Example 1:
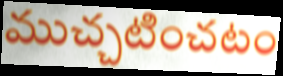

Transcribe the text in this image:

ముచ్చటించటం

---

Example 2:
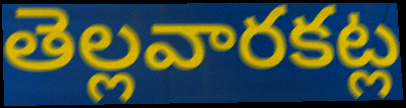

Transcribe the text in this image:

తెల్లవారకట్ల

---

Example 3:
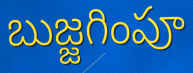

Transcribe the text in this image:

బుజ్జగింపూ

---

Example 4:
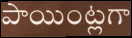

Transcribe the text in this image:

పాయింట్లగా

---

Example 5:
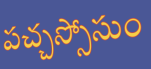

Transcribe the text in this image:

పచ్చస్సోసుం